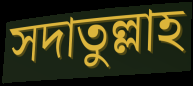
সদাতুল্লাহ